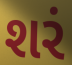
શરં